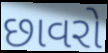
છાવરો